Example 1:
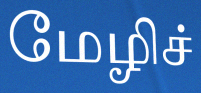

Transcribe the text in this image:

மேழிச்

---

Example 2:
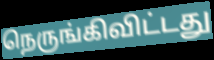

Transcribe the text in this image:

நெருங்கிவிட்டது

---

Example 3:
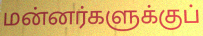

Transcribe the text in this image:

மன்னர்களுக்குப்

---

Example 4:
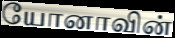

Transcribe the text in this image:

யோனாவின்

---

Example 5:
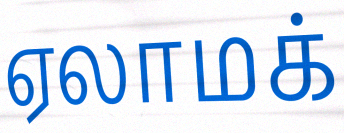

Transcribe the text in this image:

ஏலாமக்